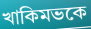
খাকিমভকে